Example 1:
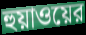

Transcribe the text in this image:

হুয়াওয়ের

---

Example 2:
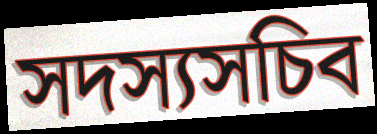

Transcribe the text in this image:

সদস্যসচিব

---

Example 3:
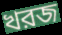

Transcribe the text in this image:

খরজ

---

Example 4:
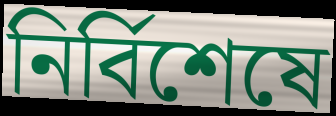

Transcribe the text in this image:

নির্বিশেষে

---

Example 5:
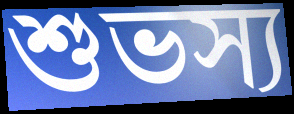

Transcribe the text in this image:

শুভস্য